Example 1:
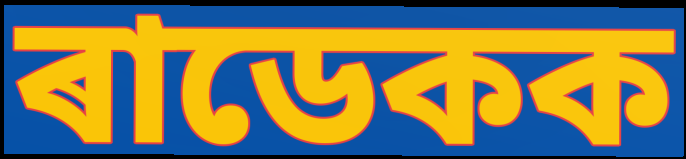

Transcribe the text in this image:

ৰাডেকক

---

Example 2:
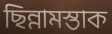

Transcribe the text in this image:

ছিন্নামস্তাক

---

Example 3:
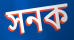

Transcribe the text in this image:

সনক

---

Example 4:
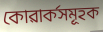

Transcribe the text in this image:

কোৱাৰ্কসমূহক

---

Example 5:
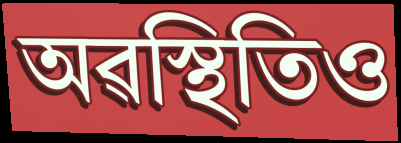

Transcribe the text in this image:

অৱস্থিতিও